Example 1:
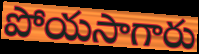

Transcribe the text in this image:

పోయసాగారు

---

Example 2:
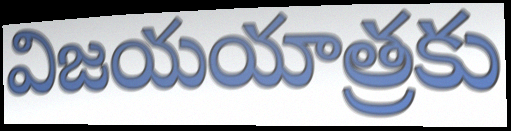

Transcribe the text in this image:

విజయయాత్రకు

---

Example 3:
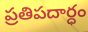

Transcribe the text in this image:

ప్రతిపదార్ధం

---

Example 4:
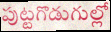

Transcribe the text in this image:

పుట్టగొడుగుల్లో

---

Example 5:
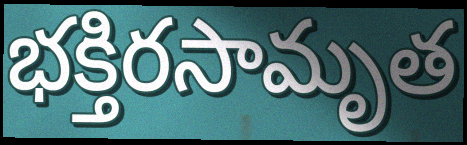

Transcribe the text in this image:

భక్తిరసామృత